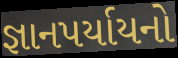
જ્ઞાનપર્યાયનો